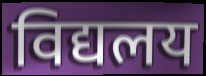
विद्यलय